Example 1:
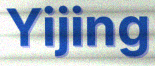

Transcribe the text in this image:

Yijing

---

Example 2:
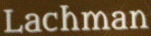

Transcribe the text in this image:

Lachman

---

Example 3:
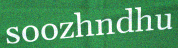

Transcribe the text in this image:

soozhndhu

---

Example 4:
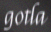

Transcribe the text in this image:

gotla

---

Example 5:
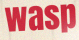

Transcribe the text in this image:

wasp